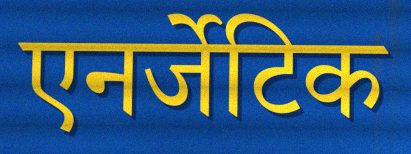
एनर्जेटिक